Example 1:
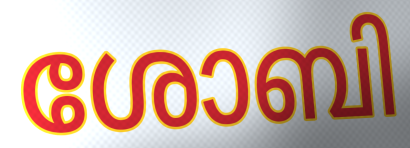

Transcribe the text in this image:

ശോബി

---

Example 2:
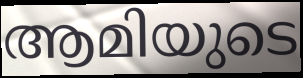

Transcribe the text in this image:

ആമിയുടെ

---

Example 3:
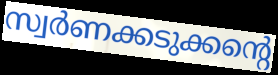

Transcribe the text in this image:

സ്വർണക്കടുക്കന്റെ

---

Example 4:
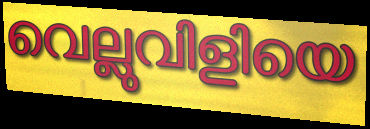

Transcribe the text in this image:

വെല്ലുവിളിയെ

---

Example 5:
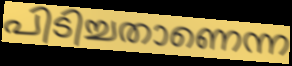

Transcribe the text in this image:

പിടിച്ചതാണെന്ന